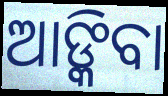
ଆଙ୍କିବା